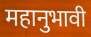
महानुभावी